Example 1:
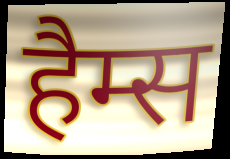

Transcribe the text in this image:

हैम्स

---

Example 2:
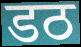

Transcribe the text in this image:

डठ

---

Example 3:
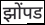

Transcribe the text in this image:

झोंपड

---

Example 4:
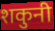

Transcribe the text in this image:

शकुनी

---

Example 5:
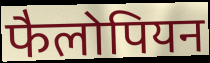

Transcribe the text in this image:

फैलोपियन